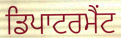
ਡਿਪਾਟਰਮੈਂਟ